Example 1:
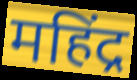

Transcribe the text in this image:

महिंद्र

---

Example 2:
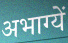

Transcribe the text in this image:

अभाग्यें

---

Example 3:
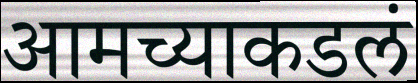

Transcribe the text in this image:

आमच्याकडलं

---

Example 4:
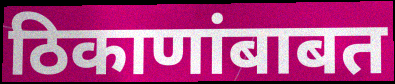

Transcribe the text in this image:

ठिकाणांबाबत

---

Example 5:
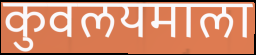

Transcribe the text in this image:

कुवलयमाला